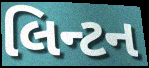
લિન્ટન